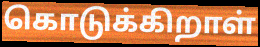
கொடுக்கிறாள்